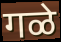
गळे